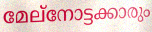
മേല്നോട്ടക്കാരും